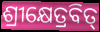
ଶ୍ରୀକ୍ଷେତ୍ରବିତ୍